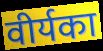
वीर्यका